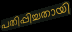
പതിപ്പിച്ചതായി